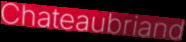
Chateaubriand